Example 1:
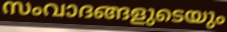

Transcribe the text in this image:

സംവാദങ്ങളുടെയും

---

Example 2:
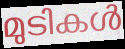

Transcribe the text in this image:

മുടികൾ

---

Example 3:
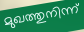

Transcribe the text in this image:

മുഖത്തുനിന്ന്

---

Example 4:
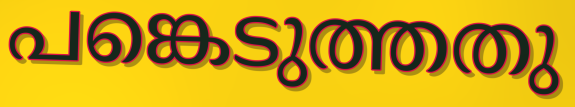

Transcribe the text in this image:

പങ്കെടുത്തതു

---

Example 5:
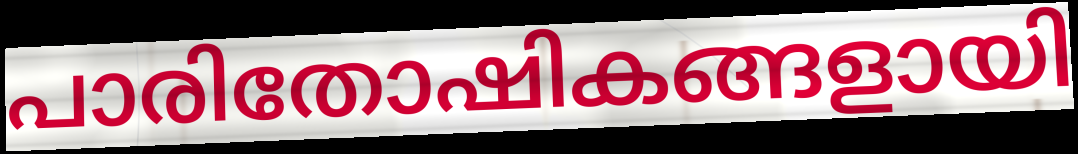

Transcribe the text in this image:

പാരിതോഷികങ്ങളായി